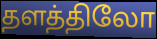
தளத்திலோ